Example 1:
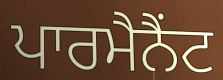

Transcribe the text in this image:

ਪਾਰਮੈਨੈਂਟ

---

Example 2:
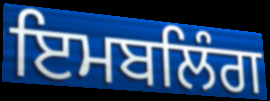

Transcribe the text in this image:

ਇਮਬਲਿੰਗ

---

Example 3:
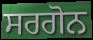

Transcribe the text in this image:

ਸਰਗੋਨ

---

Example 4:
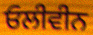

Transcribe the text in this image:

ਓਲੀਵੀਨ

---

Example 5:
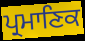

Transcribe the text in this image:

ਪ੍ਰਮਾਣਿਕ